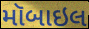
મૉબાઇલ